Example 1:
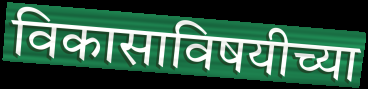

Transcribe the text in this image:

विकासाविषयीच्या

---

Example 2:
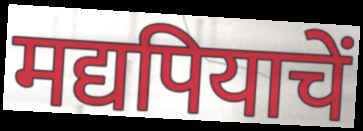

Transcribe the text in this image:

मद्यपियाचें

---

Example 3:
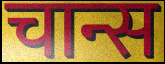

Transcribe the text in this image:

चान्स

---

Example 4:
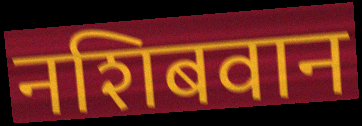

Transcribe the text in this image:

नशिबवान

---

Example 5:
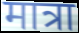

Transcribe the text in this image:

मात्रा